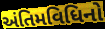
અંતિમવિધિનો